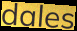
dales